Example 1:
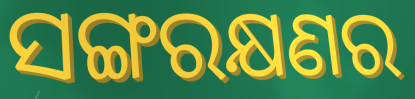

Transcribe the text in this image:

ସଙ୍ଗରକ୍ଷଣର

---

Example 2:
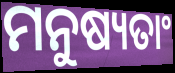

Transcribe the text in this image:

ମନୁଷ୍ୟତାଂ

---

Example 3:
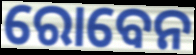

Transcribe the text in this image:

ରୋବେନ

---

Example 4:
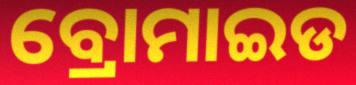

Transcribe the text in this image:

ବ୍ରୋମାଇଡ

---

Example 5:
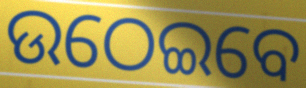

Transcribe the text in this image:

ଉଠେଇବେ